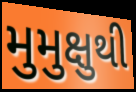
મુમુક્ષુથી